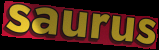
saurus